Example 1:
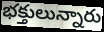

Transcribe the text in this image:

భక్తులున్నారు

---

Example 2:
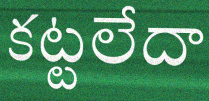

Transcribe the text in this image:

కట్టలేదా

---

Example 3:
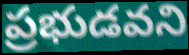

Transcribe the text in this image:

ప్రభుడవని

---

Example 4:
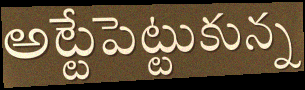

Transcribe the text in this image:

అట్టేపెట్టుకున్న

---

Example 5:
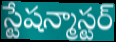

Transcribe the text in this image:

స్టేషన్మాస్టర్